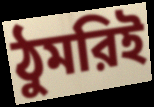
ঠুমরিই